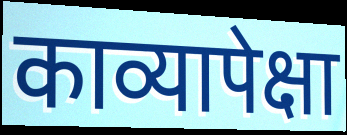
काव्यापेक्षा